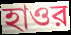
হাওর